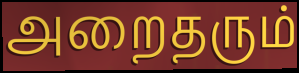
அறைதரும்